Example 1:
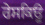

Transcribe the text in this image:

ਰੇਸਕਿਊ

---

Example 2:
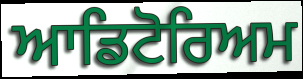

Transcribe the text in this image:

ਆਡਿਟੋਰਿਅਮ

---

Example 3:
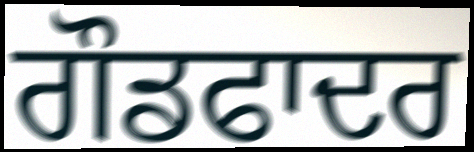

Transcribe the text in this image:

ਗੌਡਫਾਦਰ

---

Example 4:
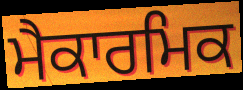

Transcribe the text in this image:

ਮੈਕਾਰਮਿਕ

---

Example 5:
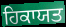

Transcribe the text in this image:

ਹਿਕਾਯਤ